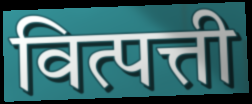
वित्पत्ती